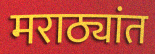
मराठ्यांत